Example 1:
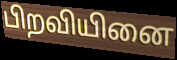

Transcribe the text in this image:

பிறவியினை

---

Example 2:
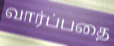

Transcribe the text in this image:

வார்ப்பதை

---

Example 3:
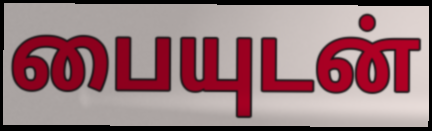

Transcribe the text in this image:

பையுடன்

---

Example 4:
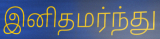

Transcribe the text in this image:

இனிதமர்ந்து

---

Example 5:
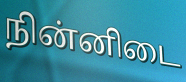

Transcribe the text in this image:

நின்னிடை